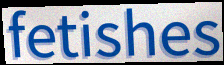
fetishes